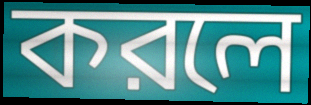
করলে